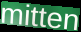
mitten